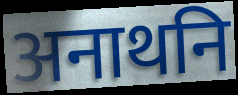
अनाथनि